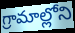
గ్రామాల్లోని